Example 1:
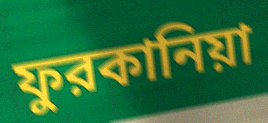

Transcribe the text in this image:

ফুরকানিয়া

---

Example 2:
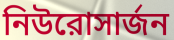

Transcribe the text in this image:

নিউরোসার্জন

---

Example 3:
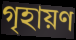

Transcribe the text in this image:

গৃহায়ণ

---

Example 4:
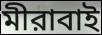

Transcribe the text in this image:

মীরাবাই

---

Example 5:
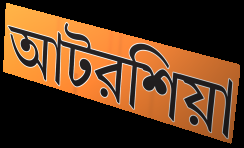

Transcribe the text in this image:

আটরশিয়া